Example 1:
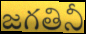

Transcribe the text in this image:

జగతినీ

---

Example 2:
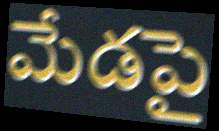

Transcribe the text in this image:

మేడపై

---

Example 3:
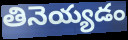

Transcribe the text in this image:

తినెయ్యడం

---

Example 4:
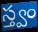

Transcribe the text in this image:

స్త్వం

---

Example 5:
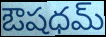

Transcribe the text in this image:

ఔషధమ్